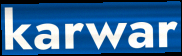
karwar